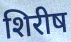
शिरीष